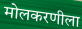
मोलकरणीला